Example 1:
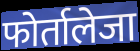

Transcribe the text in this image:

फोर्तालेजा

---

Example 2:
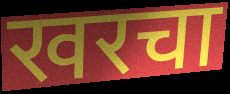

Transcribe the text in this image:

खरचा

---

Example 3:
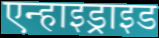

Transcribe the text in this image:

एन्हाइड्राइड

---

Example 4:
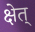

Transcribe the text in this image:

क्षेत्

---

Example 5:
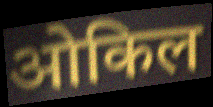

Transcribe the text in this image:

ओकिल